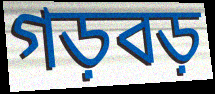
গড়বড়